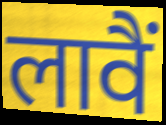
लावैं